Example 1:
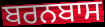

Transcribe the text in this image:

ਬਰਨਬਾਸ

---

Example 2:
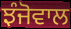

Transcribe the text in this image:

ਝੰਜੋਵਾਲ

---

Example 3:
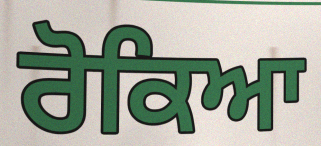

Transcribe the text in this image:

ਰੋਕਿਆ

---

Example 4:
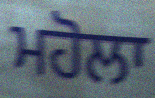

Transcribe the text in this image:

ਮਹੋਲਾ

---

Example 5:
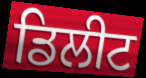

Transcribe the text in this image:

ਡਿਲੀਟ